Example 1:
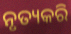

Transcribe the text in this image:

ନୃତ୍ୟକରି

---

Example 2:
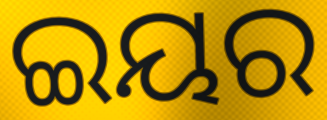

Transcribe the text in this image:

ଇୟର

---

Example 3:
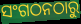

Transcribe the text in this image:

ସଂଗଠନଠାରୁ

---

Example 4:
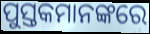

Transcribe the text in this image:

ପୁସ୍ତକମାନଙ୍କରେ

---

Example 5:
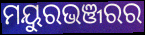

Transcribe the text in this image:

ମୟୁରଭଞ୍ଜରର